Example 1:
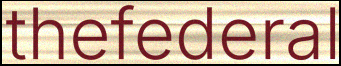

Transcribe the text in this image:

thefederal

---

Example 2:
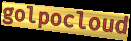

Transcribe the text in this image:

golpocloud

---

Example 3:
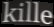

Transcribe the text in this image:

kille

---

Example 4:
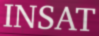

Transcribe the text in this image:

INSAT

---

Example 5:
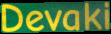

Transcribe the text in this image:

Devaki